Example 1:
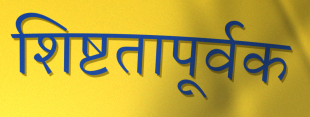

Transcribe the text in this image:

शिष्टतापूर्वक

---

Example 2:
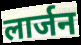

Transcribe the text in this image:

लार्जन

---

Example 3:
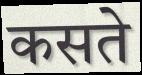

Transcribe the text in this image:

कसते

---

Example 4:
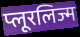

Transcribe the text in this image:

प्लूरलिज्म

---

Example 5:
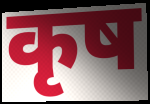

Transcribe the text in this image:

कृष